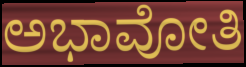
ಅಭಾವೋತಿ